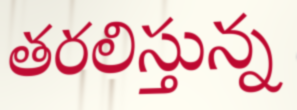
తరలిస్తున్న